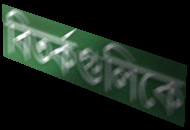
বিতর্কগুলিকে